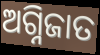
ଅଗ୍ନିଜାତ